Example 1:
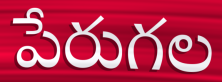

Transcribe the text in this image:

పేరుగల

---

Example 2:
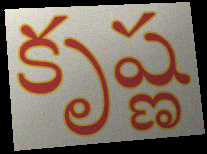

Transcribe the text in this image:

కృష్ణ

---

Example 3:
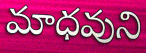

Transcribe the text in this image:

మాధవుని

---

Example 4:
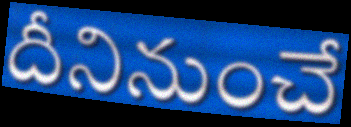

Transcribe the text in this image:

దీనినుంచే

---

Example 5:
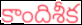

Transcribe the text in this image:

కాందిశీక